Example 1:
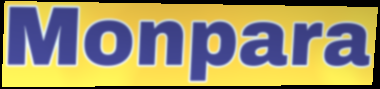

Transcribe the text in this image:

Monpara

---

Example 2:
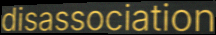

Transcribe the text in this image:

disassociation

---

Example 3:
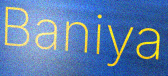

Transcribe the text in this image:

Baniya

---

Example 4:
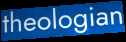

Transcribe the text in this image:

theologian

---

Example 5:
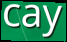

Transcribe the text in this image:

cay